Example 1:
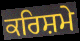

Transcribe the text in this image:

ਕਰਿਸ਼ਮੇ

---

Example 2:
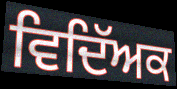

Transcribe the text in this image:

ਵਿਦਿੱਅਕ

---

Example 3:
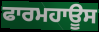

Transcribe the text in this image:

ਫਾਰਮਹਾਊਸ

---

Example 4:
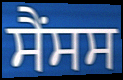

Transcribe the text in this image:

ਸੈਂਸਸ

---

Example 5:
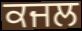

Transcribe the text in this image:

ਕਜਲ